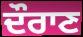
ਦੌਰਾਣ